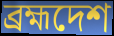
ব্রহ্মদেশ